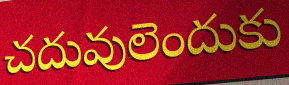
చదువులెందుకు